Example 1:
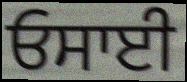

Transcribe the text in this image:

ਓਸਾਈ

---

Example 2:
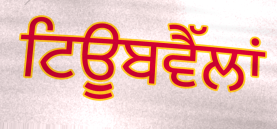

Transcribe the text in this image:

ਟਿਊੁਬਵੈੱਲਾਂ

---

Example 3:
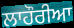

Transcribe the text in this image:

ਲਾਹੌਰੀਆ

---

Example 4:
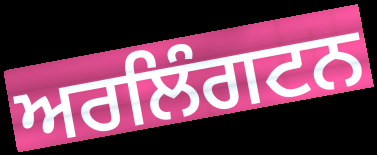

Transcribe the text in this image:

ਅਰਲਿੰਗਟਨ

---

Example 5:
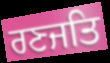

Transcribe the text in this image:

ਰਣਜਤਿ